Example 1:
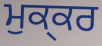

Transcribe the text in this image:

ਮੁਕ੍ਕਰ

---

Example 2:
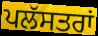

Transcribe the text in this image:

ਪਲੱਸਤਰਾਂ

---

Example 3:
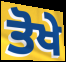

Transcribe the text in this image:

ਤੋਖੇ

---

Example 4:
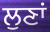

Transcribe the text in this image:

ਲੁਣਾਂ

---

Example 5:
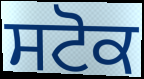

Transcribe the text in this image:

ਸਟੋਕ